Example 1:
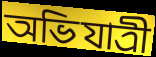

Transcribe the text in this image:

অভিযাত্রী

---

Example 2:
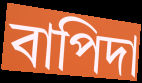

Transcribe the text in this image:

বাপিদা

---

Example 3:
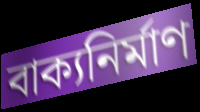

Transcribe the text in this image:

বাক্যনির্মাণ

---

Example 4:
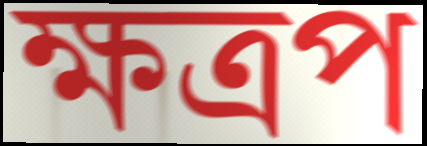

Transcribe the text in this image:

ক্ষত্রপ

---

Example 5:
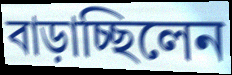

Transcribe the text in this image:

বাড়াচ্ছিলেন